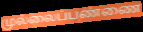
முல்லைப்பண்ணை